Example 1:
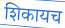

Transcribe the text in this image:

शिकायच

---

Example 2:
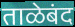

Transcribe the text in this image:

ताळेबंद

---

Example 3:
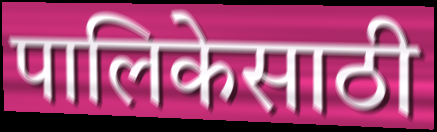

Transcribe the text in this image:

पालिकेसाठी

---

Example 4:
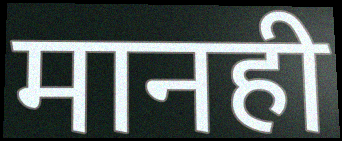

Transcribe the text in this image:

मानही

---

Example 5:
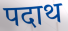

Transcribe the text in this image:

पदाथ